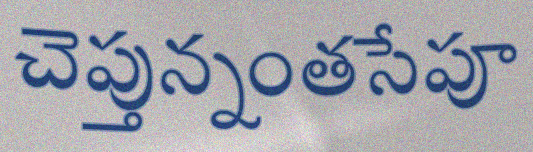
చెప్తున్నంతసేపూ